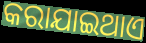
କରାଯାଇଥାଏ